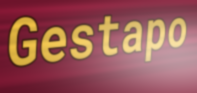
Gestapo